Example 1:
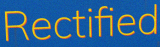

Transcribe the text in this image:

Rectified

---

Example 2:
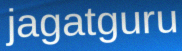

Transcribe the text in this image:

jagatguru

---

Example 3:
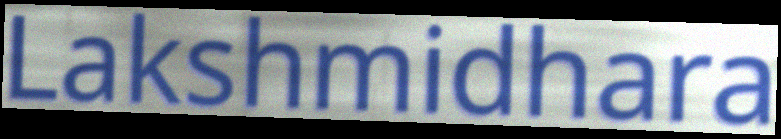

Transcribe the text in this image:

Lakshmidhara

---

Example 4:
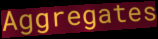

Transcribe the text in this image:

Aggregates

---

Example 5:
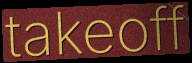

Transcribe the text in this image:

takeoff